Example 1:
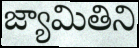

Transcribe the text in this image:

జ్యామితిని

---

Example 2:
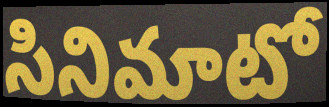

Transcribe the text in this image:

సినిమాటో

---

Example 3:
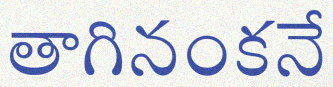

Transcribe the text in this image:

తాగినంకనే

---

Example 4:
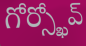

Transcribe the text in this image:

గోర్స్ఖోవ్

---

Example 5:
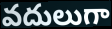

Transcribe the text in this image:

వదులుగా